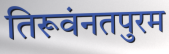
तिरूवंनतपुरम